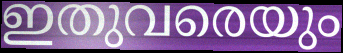
ഇതുവരെയും